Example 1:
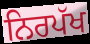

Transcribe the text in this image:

ਨਿਰਪੱਖ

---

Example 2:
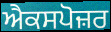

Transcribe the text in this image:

ਐਕਸਪੋਜ਼ਰ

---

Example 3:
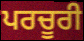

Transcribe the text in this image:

ਪਰਚੂਰੀ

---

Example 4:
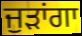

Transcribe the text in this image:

ਜੁੜਾਂਗਾ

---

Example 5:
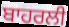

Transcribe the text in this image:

ਬਾਹਰਲੀ